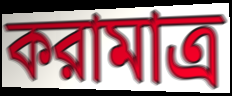
করামাত্র